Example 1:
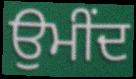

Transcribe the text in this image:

ਉਮੀਂਦ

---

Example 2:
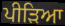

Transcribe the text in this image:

ਪੀੜਿਆ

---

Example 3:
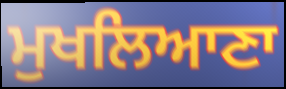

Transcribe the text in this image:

ਮੁਖਲਿਆਣਾ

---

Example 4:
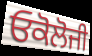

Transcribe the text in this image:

ਓਕੋਲੋਜੀ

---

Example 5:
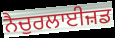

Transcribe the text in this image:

ਨੈਚੁਰਲਾਈਜ਼ਡ